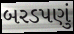
બરડપણું